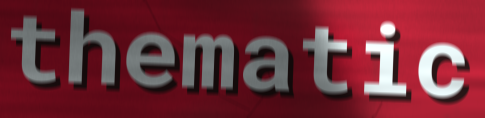
thematic